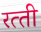
रत्‍ती